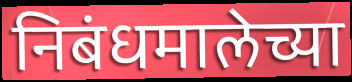
निबंधमालेच्या